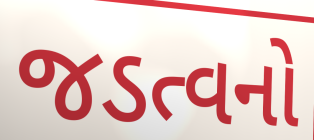
જડત્વનો